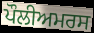
ਪੌਲੀਅਮਰਸ